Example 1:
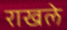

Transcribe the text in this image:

राखले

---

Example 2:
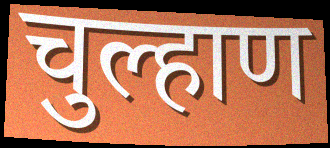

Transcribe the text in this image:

चुल्हाण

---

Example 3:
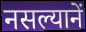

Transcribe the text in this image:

नसल्यानें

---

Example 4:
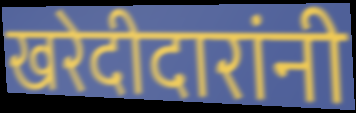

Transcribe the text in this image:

खरेदीदारांनी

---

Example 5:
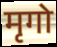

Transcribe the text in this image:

मृगो